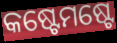
କଷ୍ଟେମଷ୍ଟେ